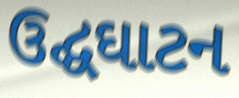
ઉદ્ઘઘાટન